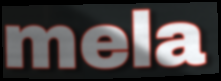
mela